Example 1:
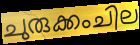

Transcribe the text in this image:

ചുരുക്കംചില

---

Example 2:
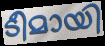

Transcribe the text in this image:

ടീമായി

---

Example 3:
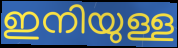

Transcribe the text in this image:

ഇനിയുള്ള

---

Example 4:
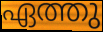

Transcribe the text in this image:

ഏത്തു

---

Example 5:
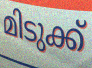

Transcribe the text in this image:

മിടുക്ക്